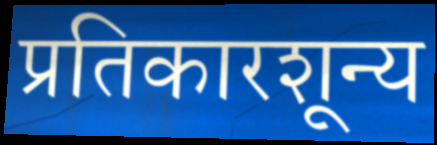
प्रतिकारशून्य